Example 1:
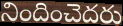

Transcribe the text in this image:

నిందించెదరు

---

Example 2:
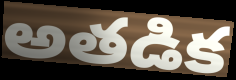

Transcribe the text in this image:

అతడిక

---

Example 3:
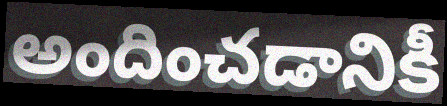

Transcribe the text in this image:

అందించడానికీ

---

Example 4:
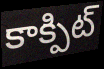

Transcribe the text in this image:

కాక్పిట్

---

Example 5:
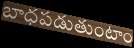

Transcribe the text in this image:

బాధపడుతుంటాం